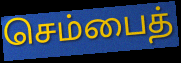
செம்பைத்